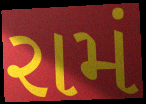
રામં